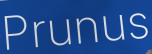
Prunus